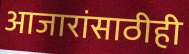
आजारांसाठीही